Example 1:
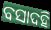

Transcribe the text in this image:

ବସାଦହି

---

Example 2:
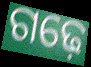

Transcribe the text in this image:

ଗଢ଼େ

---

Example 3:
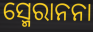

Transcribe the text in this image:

ସ୍ମେରାନନା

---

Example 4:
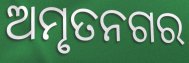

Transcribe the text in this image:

ଅମୃତନଗର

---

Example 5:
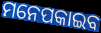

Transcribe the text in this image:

ମନେପକାଇବ